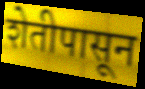
शेतीपासून